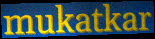
mukatkar